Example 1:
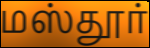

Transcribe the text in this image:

மஸ்தூர்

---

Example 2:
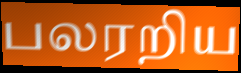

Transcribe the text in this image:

பலரறிய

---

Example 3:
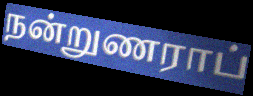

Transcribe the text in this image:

நன்றுணராப்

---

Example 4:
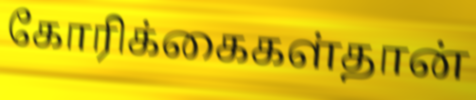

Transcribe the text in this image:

கோரிக்கைகள்தான்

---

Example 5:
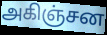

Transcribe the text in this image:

அகிஞ்சன